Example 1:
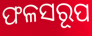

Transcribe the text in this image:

ଫଳସରୂପ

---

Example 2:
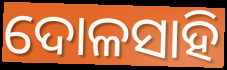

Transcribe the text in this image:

ଦୋଳସାହି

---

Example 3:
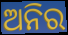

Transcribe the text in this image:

ଅନିର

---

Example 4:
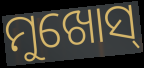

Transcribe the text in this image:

ମୁଖୋସ୍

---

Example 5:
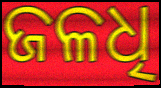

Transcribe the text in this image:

ଜଳଧି